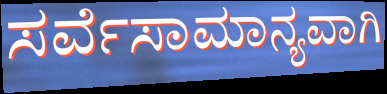
ಸರ್ವೆಸಾಮಾನ್ಯವಾಗಿ